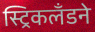
स्ट्रिकलँडने